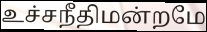
உச்சநீதிமன்றமே